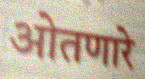
ओतणारे